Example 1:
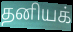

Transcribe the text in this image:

தனியக்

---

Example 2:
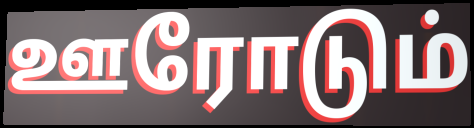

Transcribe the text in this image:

ஊரோடும்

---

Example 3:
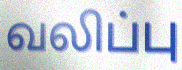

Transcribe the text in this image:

வலிப்பு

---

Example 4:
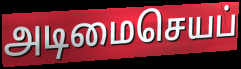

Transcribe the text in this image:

அடிமைசெயப்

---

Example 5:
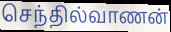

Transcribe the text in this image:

செந்தில்வாணன்